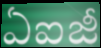
ఏఐజీ